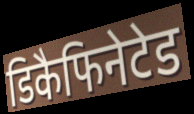
डिकैफिनेटेड